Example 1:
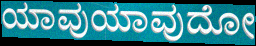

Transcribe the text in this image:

ಯಾವುಯಾವುದೋ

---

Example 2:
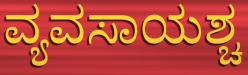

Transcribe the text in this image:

ವ್ಯವಸಾಯಶ್ಚ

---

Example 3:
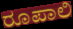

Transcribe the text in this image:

ರೂಪಾಲಿ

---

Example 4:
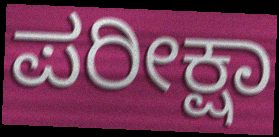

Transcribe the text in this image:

ಪರೀಕ್ಷಾ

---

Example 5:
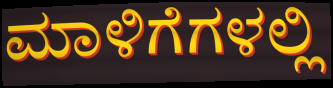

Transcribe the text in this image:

ಮಾಳಿಗೆಗಳಲ್ಲಿ